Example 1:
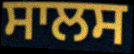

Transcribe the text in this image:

ਸਾਲਸ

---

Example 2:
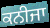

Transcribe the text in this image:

ਕਨੀਜਾ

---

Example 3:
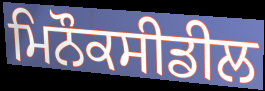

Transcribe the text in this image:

ਮਿਨੌਕਸੀਡੀਲ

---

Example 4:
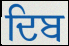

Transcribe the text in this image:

ਦਿਬ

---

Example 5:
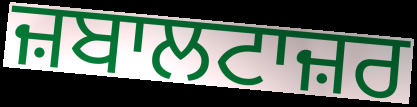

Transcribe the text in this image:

ਜ਼ਬਾਲਟਾਜ਼ਰ